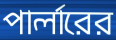
পার্লারের